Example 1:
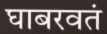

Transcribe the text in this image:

घाबरवतं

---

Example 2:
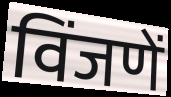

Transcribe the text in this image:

विंजणें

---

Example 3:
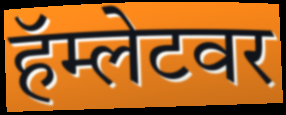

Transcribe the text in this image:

हॅम्लेटवर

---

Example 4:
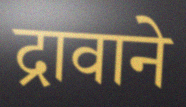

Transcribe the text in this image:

द्रावाने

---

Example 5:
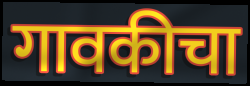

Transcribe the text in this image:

गावकीचा